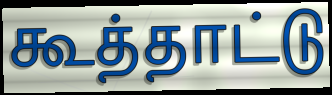
கூத்தாட்டு